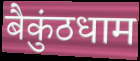
बैकुंठधाम